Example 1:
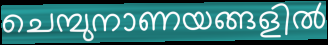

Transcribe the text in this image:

ചെമ്പുനാണയങ്ങളിൽ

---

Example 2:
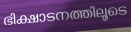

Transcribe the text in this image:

ഭിക്ഷാടനത്തിലൂടെ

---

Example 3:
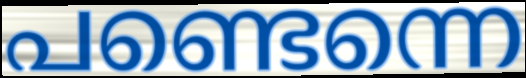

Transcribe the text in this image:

പണ്ടെന്നെ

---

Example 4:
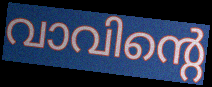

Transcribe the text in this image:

വാവിന്റെ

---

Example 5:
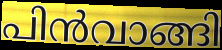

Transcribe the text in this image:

പിൻവാങ്ങി